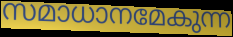
സമാധാനമേകുന്ന